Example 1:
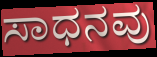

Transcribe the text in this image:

ಸಾಧನವು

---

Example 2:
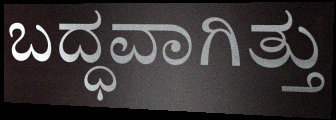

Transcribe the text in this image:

ಬದ್ಧವಾಗಿತ್ತು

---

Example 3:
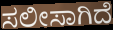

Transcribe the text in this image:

ಸಲೀಸಾಗಿದೆ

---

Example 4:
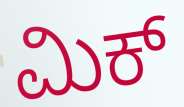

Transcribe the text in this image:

ಮಿಕ್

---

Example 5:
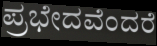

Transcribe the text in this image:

ಪ್ರಭೇದವೆಂದರೆ